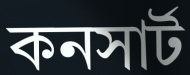
কনসার্ট